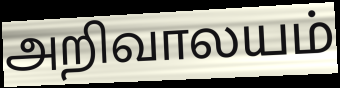
அறிவாலயம்